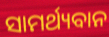
ସାମର୍ଥ୍ୟବାନ